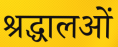
श्रद्धालओं